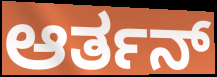
ಆರ್ತನ್